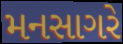
મનસાગરે